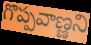
గొప్పవాణ్ణని